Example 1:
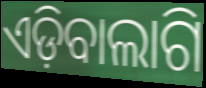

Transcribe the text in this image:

ଏଡ଼ିବାଲାଗି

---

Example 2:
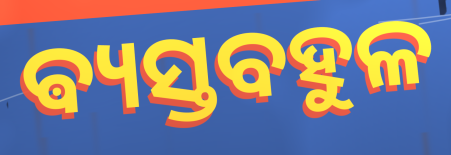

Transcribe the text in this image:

ଵ୍ୟସ୍ତବହୁଳ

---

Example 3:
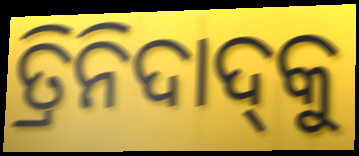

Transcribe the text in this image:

ତ୍ରିନିଦାଦ୍‍କୁ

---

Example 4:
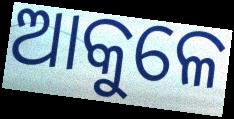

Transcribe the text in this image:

ଆକୁଳେ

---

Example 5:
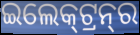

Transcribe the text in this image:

ଇଲେକ୍‍ଟ୍ରନ୍‍ର